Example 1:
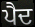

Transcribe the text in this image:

ਪੈਦ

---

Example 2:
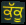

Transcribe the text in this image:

ਕੁੱਕੂ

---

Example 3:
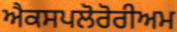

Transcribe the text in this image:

ਐਕਸਪਲੋਰੋਰੀਅਮ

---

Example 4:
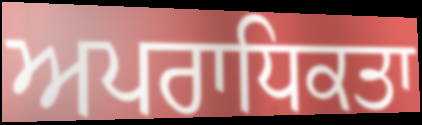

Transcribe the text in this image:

ਅਪਰਾਧਿਕਤਾ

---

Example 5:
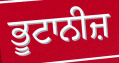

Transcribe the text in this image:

ਭੂਟਾਨੀਜ਼